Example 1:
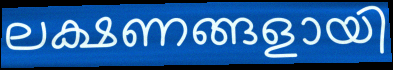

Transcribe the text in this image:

ലക്ഷണങ്ങളായി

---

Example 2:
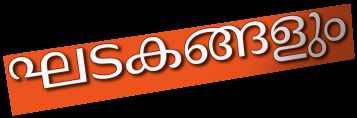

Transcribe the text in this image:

ഘടകങ്ങളും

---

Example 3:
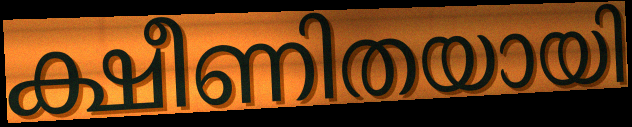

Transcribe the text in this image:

ക്ഷീണിതയായി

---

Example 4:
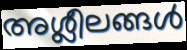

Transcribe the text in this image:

അശ്ലീലങ്ങൾ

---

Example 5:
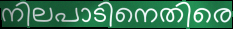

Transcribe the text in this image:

നിലപാടിനെതിരെ